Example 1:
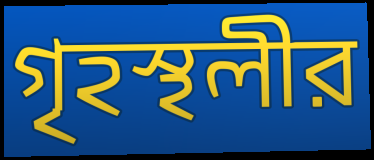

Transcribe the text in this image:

গৃহস্থলীর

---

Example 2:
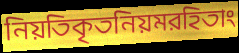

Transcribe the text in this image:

নিয়তিকৃতনিয়মরহিতাং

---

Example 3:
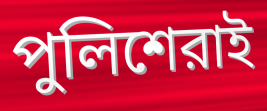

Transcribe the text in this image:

পুলিশেরাই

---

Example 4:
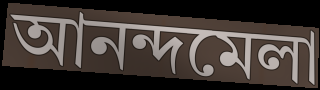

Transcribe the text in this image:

আনন্দমেলা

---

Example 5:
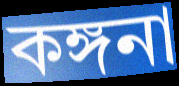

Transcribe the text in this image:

কঙ্গনা